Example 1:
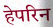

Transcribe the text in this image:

हेपरिन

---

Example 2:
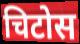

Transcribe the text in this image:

चिटोस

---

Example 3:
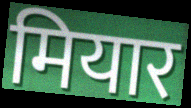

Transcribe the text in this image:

मियार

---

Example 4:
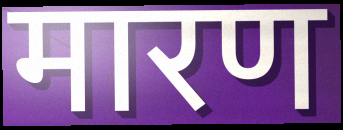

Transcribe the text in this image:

मारण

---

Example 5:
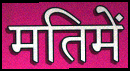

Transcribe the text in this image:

मतिमें